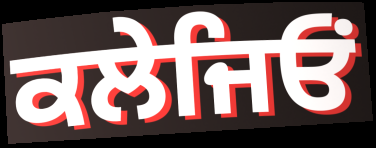
ਕਲੇਜਿਓਂ